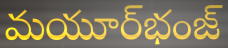
మయూర్‌భంజ్